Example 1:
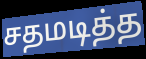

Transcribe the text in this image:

சதமடித்த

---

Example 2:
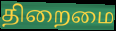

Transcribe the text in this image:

திறைமை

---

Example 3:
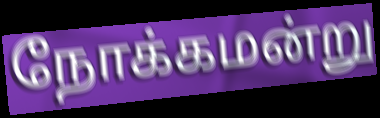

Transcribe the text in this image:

நோக்கமன்று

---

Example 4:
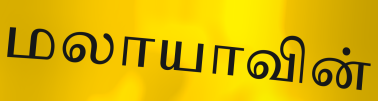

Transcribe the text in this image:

மலாயாவின்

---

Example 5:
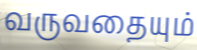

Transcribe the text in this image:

வருவதையும்